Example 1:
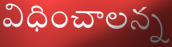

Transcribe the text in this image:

విధించాలన్న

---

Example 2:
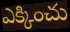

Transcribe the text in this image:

ఎక్కించు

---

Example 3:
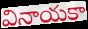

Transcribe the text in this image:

వినాయకా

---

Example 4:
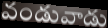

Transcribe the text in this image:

వండువాడు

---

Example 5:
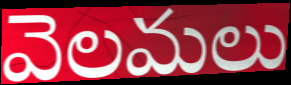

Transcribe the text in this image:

వెలమలు